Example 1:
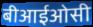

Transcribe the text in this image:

बीआईओसी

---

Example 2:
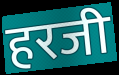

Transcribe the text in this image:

हरजी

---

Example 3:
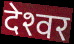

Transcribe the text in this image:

देश्वर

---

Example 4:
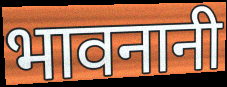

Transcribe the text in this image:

भावनानी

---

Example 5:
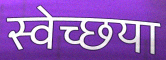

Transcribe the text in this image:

स्वेच्छया